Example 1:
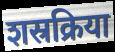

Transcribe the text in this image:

शस्रक्रिया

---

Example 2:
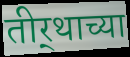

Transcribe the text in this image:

तीर्थाच्या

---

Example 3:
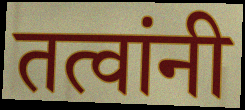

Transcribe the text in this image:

तत्वांनी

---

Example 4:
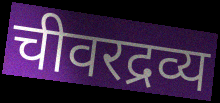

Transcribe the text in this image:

चीवरद्रव्य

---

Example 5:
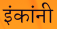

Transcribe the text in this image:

इंकांनी